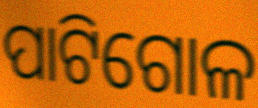
ପାଟିଗୋଳ